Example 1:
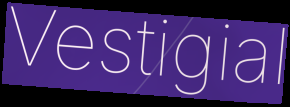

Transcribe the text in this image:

Vestigial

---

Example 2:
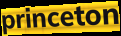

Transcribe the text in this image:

princeton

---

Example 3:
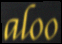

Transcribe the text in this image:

aloo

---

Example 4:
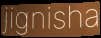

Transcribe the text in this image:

jignisha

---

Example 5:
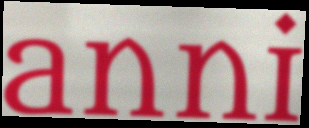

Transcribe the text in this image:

anni